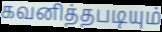
கவனித்தபடியும்